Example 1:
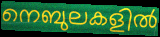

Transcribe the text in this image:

നെബുലകളിൽ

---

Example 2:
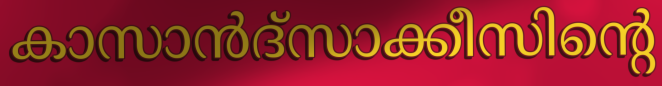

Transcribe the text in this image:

കാസാൻദ്സാക്കീസിന്റെ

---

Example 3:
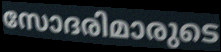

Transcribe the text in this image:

സോദരിമാരുടെ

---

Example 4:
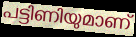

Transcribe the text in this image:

പട്ടിണിയുമാണ്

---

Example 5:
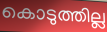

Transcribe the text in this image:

കൊടുത്തില്ല